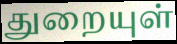
துறையுள்